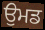
ਉਮਡ